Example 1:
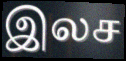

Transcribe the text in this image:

இலச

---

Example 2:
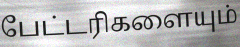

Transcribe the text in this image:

பேட்டரிகளையும்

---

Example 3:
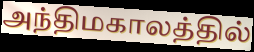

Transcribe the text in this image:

அந்திமகாலத்தில்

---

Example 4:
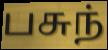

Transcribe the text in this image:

பசுந்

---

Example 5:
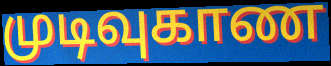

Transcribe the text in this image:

முடிவுகாண